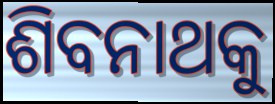
ଶିବନାଥକୁ